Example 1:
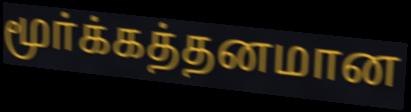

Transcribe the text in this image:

மூர்க்கத்தனமான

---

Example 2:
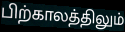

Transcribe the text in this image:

பிற்காலத்திலும்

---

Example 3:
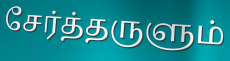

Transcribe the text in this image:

சேர்த்தருளும்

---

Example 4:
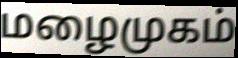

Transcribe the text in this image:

மழைமுகம்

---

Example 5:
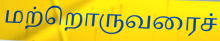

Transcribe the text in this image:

மற்றொருவரைச்